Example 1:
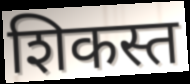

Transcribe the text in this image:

शिकस्त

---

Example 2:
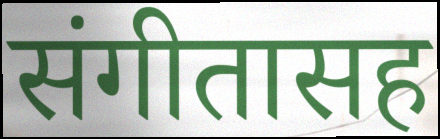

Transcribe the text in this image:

संगीतासह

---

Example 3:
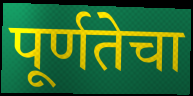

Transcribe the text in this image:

पूर्णतेचा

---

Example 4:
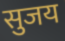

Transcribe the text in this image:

सुजय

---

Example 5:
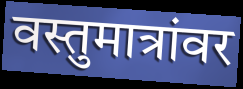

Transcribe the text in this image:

वस्तुमात्रांवर